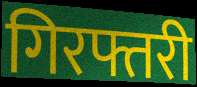
गिरफ्तरी